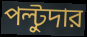
পল্টুদার